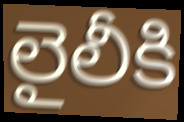
లైలీకి